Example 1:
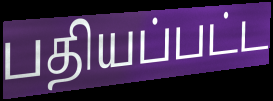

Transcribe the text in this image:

பதியப்பட்ட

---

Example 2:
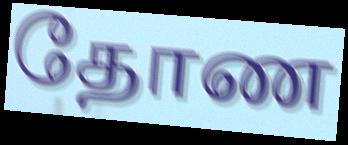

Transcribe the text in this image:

தோண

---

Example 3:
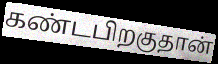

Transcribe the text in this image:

கண்டபிறகுதான்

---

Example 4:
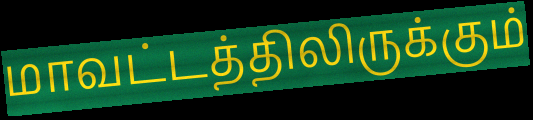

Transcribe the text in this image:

மாவட்டத்திலிருக்கும்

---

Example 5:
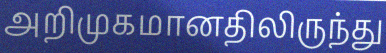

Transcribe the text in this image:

அறிமுகமானதிலிருந்து